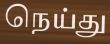
நெய்து